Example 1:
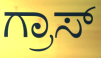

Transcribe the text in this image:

ಗ್ರಾಸ್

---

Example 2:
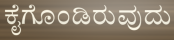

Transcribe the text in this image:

ಕೈಗೊಂಡಿರುವುದು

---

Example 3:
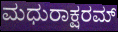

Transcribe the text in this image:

ಮಧುರಾಕ್ಷರಮ್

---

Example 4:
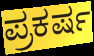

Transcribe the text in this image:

ಪ್ರಕರ್ಷ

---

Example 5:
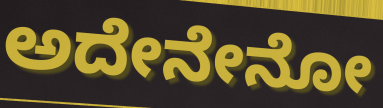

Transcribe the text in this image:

ಅದೇನೇನೋ